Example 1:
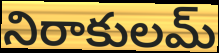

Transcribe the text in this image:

నిరాకులమ్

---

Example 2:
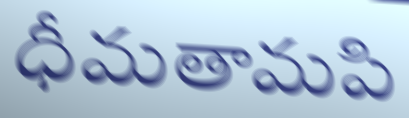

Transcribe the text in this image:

ధీమతామపి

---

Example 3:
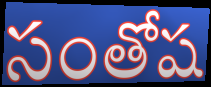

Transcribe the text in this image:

సంతోష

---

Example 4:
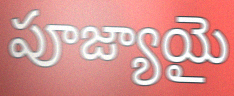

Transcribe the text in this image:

పూజ్యాయై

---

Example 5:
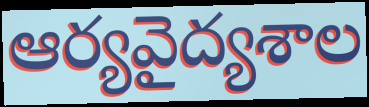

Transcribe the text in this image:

ఆర్యవైద్యశాల